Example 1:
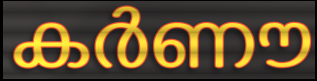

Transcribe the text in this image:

കർണൗ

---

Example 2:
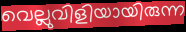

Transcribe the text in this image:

വെല്ലുവിളിയായിരുന്ന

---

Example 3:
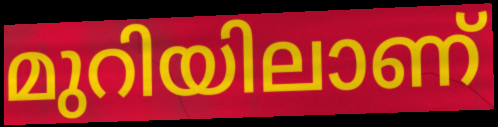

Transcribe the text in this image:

മുറിയിലാണ്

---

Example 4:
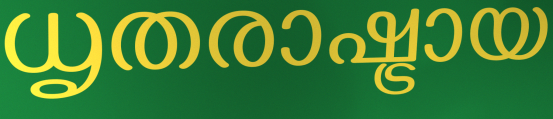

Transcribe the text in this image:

ധൃതരാഷ്ട്രായ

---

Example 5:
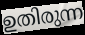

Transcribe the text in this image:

ഉതിരുന്ന